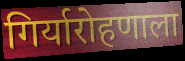
गिर्यारोहणाला